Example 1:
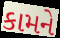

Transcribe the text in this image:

કામને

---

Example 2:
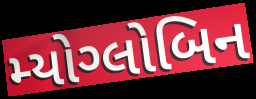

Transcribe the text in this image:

મ્યોગ્લોબિન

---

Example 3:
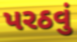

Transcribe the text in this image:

પરઠવું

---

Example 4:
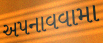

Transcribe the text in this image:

અપનાવવામા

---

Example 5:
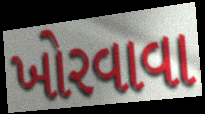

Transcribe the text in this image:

ખોરવાવા